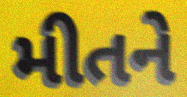
મીતને